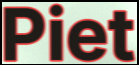
Piet